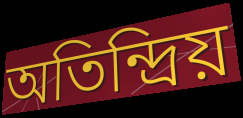
অতিন্দ্রিয়